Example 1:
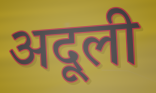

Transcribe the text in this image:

अदूली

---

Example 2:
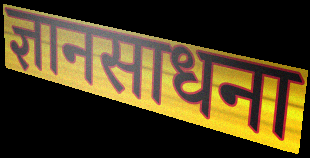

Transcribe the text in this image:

ज्ञानसाधना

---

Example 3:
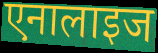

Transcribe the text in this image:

एनालाइज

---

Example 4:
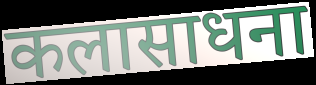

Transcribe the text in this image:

कलासाधना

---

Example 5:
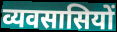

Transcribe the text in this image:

व्यवसासियों